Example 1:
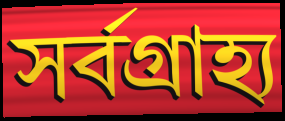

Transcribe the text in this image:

সর্বগ্রাহ্য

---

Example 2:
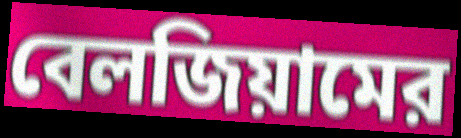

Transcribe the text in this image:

বেলজিয়ামের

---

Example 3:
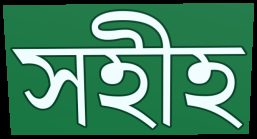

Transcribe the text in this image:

সহীহ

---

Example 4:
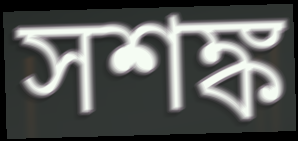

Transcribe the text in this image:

সশঙ্ক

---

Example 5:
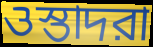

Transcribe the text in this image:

ওস্তাদরা